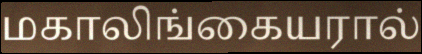
மகாலிங்கையரால்